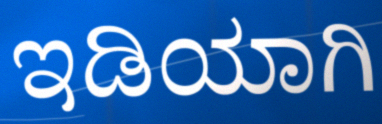
ಇಡಿಯಾಗಿ